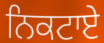
ਨਿਕਟਾਏ